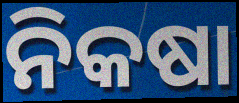
ନିକଷା